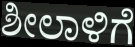
ಶೀಲಾಳಿಗೆ